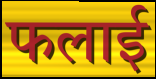
फलाई